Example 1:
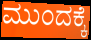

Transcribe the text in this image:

ಮುಂದಕ್ಕೆ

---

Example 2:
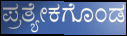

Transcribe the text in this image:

ಪ್ರತ್ಯೇಕಗೊಂಡ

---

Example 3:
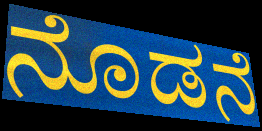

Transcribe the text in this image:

ನೊಡನೆ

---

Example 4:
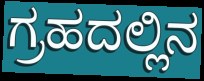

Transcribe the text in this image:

ಗ್ರಹದಲ್ಲಿನ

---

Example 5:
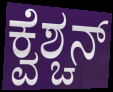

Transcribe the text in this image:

ಕ್ವೆಶ್ಚನ್